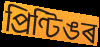
প্ৰিণ্টিঙৰ